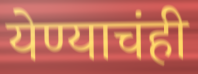
येण्याचंही